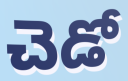
చెడో